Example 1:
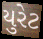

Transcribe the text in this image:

યુરેટ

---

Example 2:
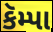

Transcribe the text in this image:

કૅમ્પા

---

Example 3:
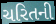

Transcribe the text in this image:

ચરિતની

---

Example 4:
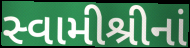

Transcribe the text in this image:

સ્વામીશ્રીનાં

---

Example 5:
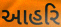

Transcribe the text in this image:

આહરિ